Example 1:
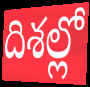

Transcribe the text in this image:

దిశల్లో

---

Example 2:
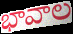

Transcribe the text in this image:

భావాల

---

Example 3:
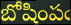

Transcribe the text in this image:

బోషింపఁ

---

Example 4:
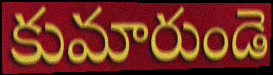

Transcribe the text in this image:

కుమారుండె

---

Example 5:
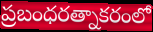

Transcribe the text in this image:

ప్రబంధరత్నాకరంలో